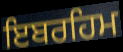
ਇਬਰਹਿਮ